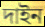
দাইন